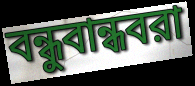
বন্ধুবান্ধবরা